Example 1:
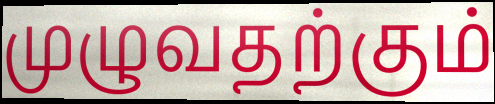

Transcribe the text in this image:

முழுவதற்கும்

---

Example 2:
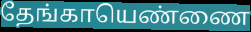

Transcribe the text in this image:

தேங்காயெண்ணை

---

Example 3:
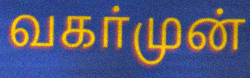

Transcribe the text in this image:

வகர்முன்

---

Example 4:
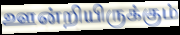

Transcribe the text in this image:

ஊன்றியிருக்கும்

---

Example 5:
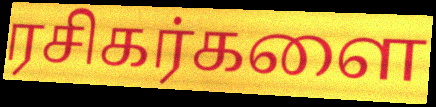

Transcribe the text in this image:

ரசிகர்களை